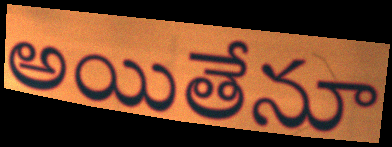
అయితేనూ